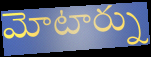
మోటార్ను